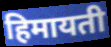
हिमायती